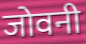
जोवनी